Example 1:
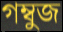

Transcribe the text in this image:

গম্বুজ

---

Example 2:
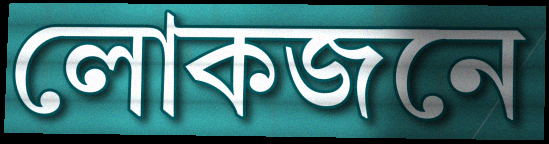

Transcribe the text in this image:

লোকজনে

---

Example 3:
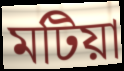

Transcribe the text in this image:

মটিয়া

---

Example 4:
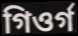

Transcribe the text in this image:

গিওৰ্গ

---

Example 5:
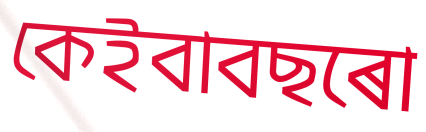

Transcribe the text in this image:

কেইবাবছৰো